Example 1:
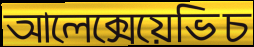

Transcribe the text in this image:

আলেক্সেয়েভিচ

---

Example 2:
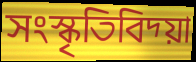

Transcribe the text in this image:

সংস্কৃতিবিদ্য়া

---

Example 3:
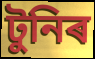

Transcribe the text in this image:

টুনিৰ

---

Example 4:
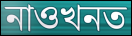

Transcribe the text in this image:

নাওখনত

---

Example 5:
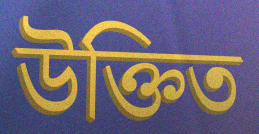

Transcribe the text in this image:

উক্তিত